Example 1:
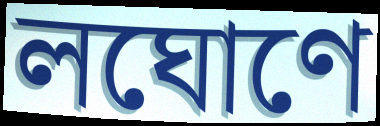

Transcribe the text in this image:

লঘোণে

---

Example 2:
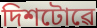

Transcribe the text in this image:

দিশটোৱে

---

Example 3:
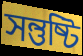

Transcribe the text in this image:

সন্তুষ্টি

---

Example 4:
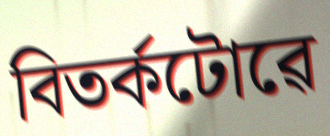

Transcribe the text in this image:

বিতৰ্কটোৱে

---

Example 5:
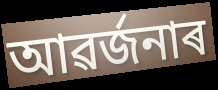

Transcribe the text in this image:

আৱৰ্জনাৰ